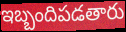
ఇబ్బందిపడతారు